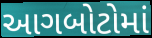
આગબોટોમાં